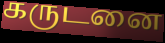
கருடனை